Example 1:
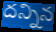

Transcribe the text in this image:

దన్నిన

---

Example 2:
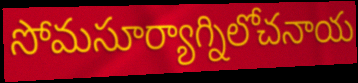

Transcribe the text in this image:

సోమసూర్యాగ్నిలోచనాయ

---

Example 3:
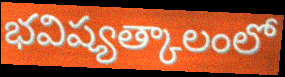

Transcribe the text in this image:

భవిష్యత్కాలంలో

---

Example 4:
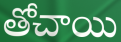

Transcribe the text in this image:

తోచాయి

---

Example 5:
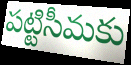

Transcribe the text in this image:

పట్టిసీమకు